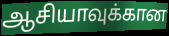
ஆசியாவுக்கான